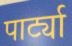
पार्ट्या